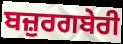
ਬਜ਼ੁਰਗਬੇਰੀ